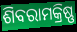
ଶିବରାମକ୍ରିଷ୍ଣ